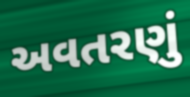
અવતરણું